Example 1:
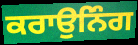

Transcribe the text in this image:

ਕਰਾਉਨਿੰਗ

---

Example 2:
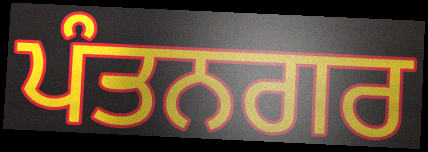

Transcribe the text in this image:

ਪੰਤਨਗਰ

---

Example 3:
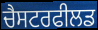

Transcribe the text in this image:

ਚੈਸਟਰਫੀਲਡ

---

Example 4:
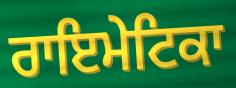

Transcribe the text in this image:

ਰਾਇਮੇਟਿਕਾ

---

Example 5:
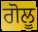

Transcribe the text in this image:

ਗੋਲੂ